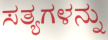
ಸತ್ಯಗಳನ್ನು